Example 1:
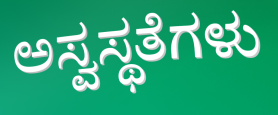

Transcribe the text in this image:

ಅಸ್ವಸ್ಥತೆಗಳು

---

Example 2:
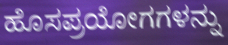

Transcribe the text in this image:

ಹೊಸಪ್ರಯೋಗಗಳನ್ನು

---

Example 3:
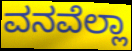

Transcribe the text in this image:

ವನವೆಲ್ಲಾ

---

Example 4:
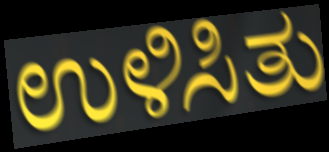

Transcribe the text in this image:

ಉಳಿಸಿತು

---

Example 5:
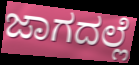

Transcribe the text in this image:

ಜಾಗದಲ್ಲೆ